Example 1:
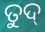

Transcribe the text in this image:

ତୁଦ୍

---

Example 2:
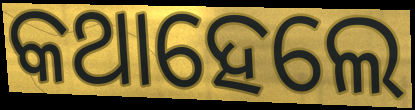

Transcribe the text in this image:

କଥାହେଲେ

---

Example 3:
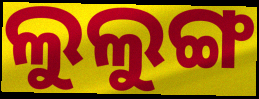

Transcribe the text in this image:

ଲୁଲୁଙ୍ଗ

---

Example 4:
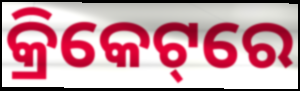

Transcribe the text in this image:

କ୍ରିକେଟ୍‌ରେ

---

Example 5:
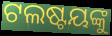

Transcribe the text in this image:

ଟଲଷ୍ଟୟଙ୍କୁ